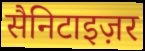
सैनिटाइज़र